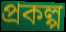
প্ৰকল্প